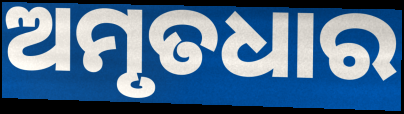
ଅମୃତଧାର